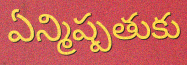
ఏన్మిష్పతుకు